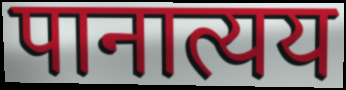
पानात्यय